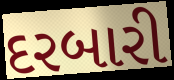
દરબારી